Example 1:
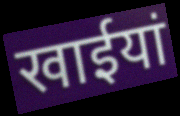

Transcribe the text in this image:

खाईयां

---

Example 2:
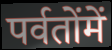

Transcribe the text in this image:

पर्वतोंमें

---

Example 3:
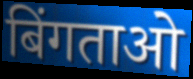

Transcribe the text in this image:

बिंगताओ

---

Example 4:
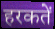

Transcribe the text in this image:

हरकतें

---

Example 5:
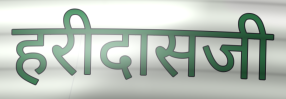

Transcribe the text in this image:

हरीदासजी